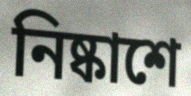
নিষ্কাশে